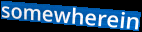
somewherein